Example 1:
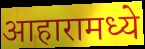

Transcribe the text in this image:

आहारामध्ये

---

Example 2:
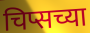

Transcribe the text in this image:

चिप्सच्या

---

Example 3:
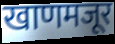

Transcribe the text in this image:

खाणमजूर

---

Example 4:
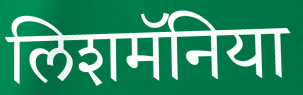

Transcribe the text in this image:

लिशमॅनिया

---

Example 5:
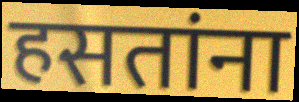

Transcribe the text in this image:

हसतांना